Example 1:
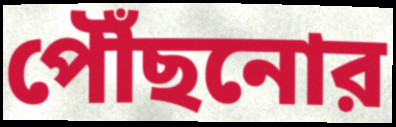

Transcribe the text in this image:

পৌঁছনোর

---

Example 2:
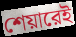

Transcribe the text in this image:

শেয়ারেই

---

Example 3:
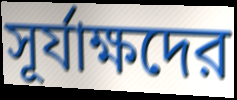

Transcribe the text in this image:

সূর্যাক্ষদের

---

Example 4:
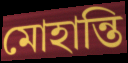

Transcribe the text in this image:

মোহান্তি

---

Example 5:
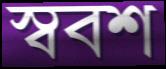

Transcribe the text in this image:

স্ববশ